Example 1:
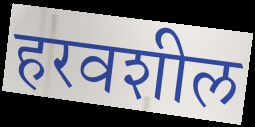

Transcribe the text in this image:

हरवशील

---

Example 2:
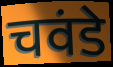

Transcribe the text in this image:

चवंडे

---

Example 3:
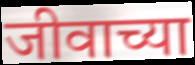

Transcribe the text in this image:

जीवाच्या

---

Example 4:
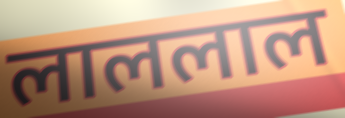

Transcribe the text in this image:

लाललाल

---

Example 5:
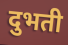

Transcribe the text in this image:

दुभती